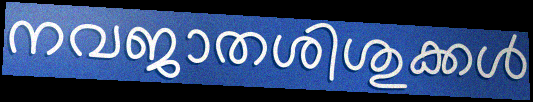
നവജാതശിശുക്കൾ